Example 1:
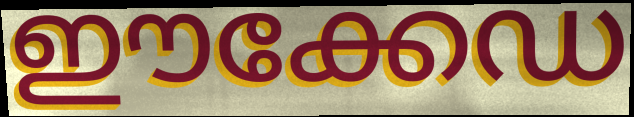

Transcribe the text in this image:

ഈക്കേഡ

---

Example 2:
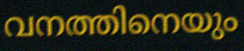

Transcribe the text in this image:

വനത്തിനെയും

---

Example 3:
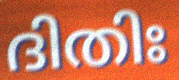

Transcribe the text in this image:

ദിതിഃ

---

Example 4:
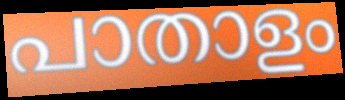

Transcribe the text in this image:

പാതാളം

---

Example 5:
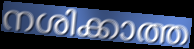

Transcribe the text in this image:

നശിക്കാത്ത